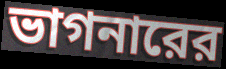
ভাগনারের